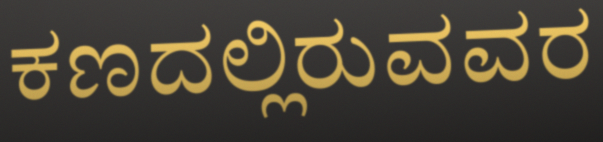
ಕಣದಲ್ಲಿರುವವರ